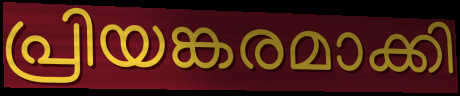
പ്രിയങ്കരമാക്കി